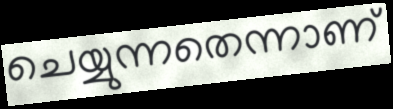
ചെയ്യുന്നതെന്നാണ്